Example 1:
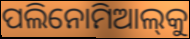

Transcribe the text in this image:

ପଲିନୋମିଆଲ୍‌କୁ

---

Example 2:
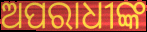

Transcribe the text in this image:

ଅପରାଧୀଙ୍କ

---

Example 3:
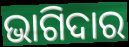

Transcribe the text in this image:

ଭାଗିଦାର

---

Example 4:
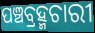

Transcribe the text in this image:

ପଞ୍ଚବ୍ରହ୍ମଚାରୀ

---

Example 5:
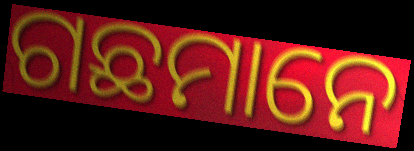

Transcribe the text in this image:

ଗଛମାନେ